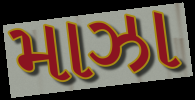
માઝા